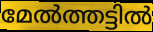
മേൽത്തട്ടിൽ